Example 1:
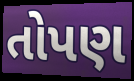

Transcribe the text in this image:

તોપણ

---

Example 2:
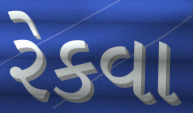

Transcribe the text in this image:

રેકવા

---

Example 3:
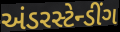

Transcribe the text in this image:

અંડરસ્ટેન્ડીંગ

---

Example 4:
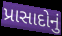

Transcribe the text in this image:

પ્રાસાદોનું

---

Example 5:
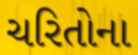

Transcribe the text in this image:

ચરિતોના